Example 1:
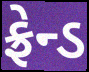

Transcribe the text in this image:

ફ્રેન્ડ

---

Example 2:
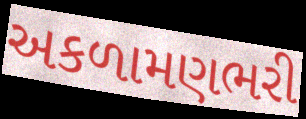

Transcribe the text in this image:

અકળામણભરી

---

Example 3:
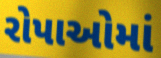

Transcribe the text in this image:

રોપાઓમાં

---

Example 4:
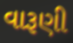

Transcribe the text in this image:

વારૂણી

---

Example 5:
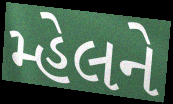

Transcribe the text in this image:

મ્હેલને